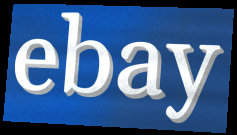
ebay